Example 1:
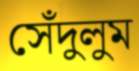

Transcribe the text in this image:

সেঁদুলুম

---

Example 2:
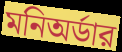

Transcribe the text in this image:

মনিঅর্ডার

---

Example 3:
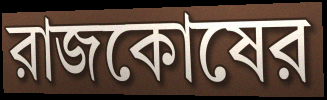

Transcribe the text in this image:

রাজকোষের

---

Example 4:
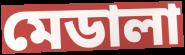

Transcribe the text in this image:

মেডালা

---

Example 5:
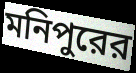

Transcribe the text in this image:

মনিপুরের